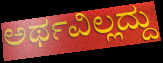
ಅರ್ಥವಿಲ್ಲದ್ದು